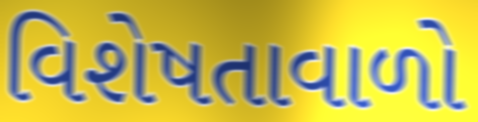
વિશેષતાવાળો